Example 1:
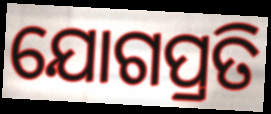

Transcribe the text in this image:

ଯୋଗପ୍ରତି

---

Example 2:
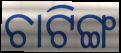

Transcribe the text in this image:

ଚାଟିଙ୍ଗ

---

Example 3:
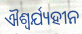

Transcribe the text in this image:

ଐଶ୍ୱର୍ଯ୍ୟହୀନ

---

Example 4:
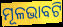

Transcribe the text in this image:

ମୂଳଭାବଟି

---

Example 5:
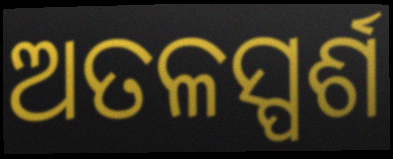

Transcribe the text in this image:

ଅତଳସ୍ପର୍ଶ